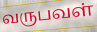
வருபவள்